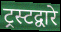
ट्रस्टद्वारे